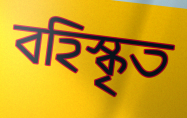
বহিস্কৃত